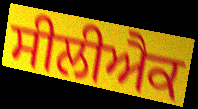
ਸੀਲੀਐਕ